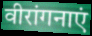
वीरांगनाएं